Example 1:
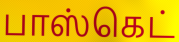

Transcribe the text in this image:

பாஸ்கெட்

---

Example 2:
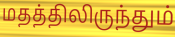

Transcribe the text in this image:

மதத்திலிருந்தும்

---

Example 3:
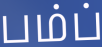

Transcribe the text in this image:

பம்ப்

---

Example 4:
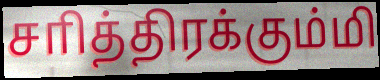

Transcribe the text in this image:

சரித்திரக்கும்மி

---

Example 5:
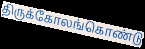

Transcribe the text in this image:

திருக்கோலங்கொண்டு